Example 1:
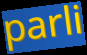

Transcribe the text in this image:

parli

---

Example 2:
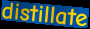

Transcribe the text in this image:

distillate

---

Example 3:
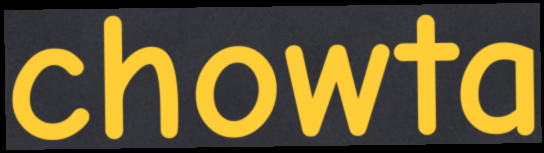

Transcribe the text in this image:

chowta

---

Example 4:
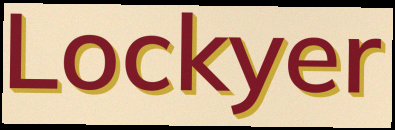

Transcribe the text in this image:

Lockyer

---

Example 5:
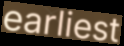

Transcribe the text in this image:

earliest